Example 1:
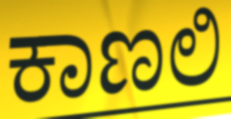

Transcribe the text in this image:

ಕಾಣಲಿ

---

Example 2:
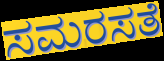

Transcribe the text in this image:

ಸಮರಸತೆ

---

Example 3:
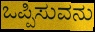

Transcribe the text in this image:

ಒಪ್ಪಿಸುವನು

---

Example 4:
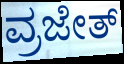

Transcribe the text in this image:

ವ್ರಜೇತ್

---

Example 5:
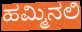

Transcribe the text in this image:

ಹಮ್ಮಿನಲಿ